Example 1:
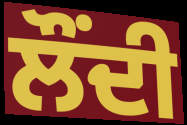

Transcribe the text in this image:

ਲੌਂਦੀ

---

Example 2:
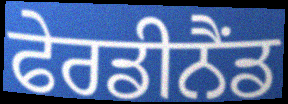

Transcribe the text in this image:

ਫੇਰਡੀਨੈਂਡ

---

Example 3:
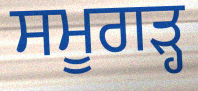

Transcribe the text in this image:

ਸਮੂਗੜ੍ਹ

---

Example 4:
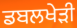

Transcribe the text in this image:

ਡਬਲਖੇੜੀ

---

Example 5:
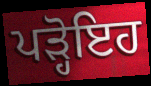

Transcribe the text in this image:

ਪੜ੍ਹੋਇਹ